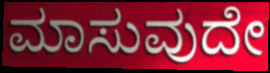
ಮಾಸುವುದೇ